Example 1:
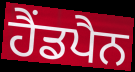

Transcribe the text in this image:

ਹੈਂਡਪੈਨ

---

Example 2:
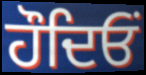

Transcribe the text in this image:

ਹੌਦਿਓਂ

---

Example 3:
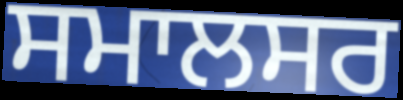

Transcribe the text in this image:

ਸਮਾਲਸਰ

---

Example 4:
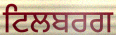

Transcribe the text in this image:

ਟਿਲਬਰਗ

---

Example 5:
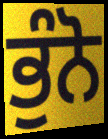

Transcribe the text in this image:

ਭੁੰਨੋ